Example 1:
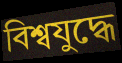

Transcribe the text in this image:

বিশ্বযুদ্ধে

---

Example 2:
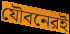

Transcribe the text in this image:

যৌবনেরই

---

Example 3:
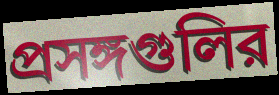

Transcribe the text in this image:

প্রসঙ্গগুলির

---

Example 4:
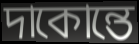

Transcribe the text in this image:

দাকোন্তে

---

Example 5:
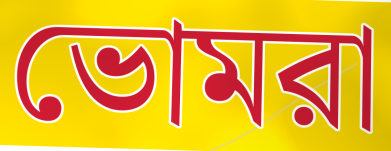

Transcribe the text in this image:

ভোমরা